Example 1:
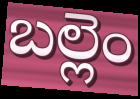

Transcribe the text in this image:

బల్లెం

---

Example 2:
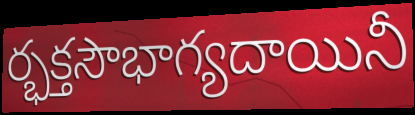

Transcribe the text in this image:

ర్భక్తసౌభాగ్యదాయినీ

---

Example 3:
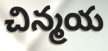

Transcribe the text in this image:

చిన్మయ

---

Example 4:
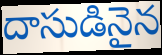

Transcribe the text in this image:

దాసుడినైన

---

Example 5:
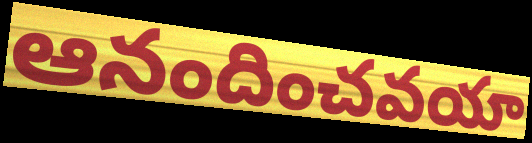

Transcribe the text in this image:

ఆనందించవయా